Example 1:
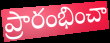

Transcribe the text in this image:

ప్రారంభించా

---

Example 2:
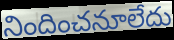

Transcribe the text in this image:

నిందించనూలేదు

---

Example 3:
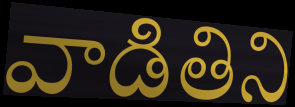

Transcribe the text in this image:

వాడితిని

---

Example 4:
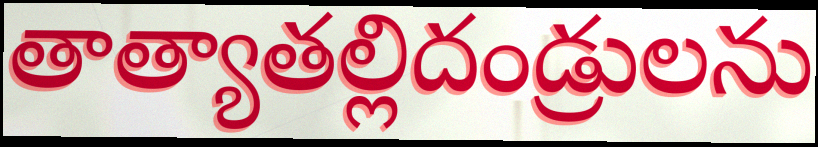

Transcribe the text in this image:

తాత్యాతల్లిదండ్రులను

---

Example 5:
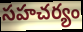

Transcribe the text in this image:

సహచర్యం